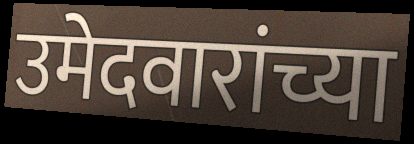
उमेदवारांच्या